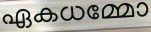
ഏകധമ്മോ